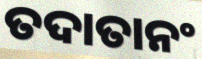
ତଦାତାନଂ